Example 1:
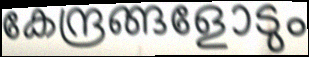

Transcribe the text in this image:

കേന്ദ്രങ്ങളോടും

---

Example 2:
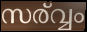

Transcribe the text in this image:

സര്വ്വം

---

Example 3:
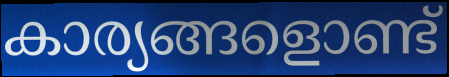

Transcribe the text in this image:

കാര്യങ്ങളൊണ്ട്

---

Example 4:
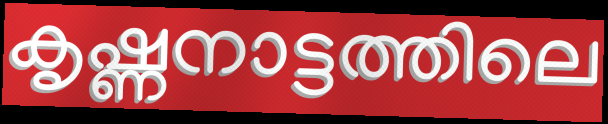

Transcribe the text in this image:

കൃഷ്ണനാട്ടത്തിലെ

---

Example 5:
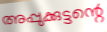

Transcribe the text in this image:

അപ്പുക്കുട്ടന്റെ